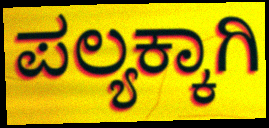
ಪಲ್ಯಕ್ಕಾಗಿ